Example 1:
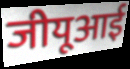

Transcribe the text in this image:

जीयूआई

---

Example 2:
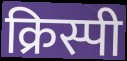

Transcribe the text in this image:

क्रिस्पी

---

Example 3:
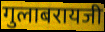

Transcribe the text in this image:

गुलाबरायजी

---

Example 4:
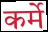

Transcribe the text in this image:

कर्मे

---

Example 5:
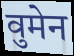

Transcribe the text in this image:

वुमेन